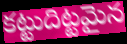
కట్టుదిట్టమైన